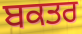
ਬਕਤਰ